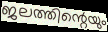
ജലത്തിന്റെയും